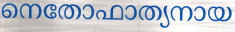
നെതോഫാത്യനായ